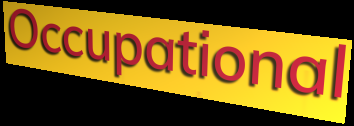
Occupational